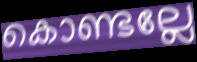
കൊണ്ടല്ലേ